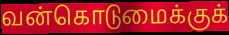
வன்கொடுமைக்குக்